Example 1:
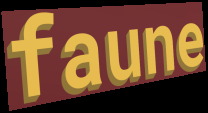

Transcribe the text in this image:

faune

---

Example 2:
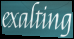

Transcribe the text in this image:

exalting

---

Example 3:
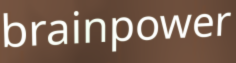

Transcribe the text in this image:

brainpower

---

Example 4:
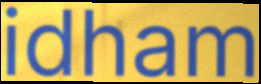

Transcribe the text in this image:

idham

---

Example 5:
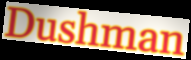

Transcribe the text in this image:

Dushman